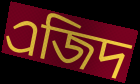
এজিদ